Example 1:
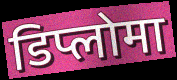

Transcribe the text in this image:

डिप्लोमा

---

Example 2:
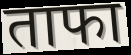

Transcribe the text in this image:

ताफा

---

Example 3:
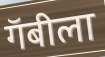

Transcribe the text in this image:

गॅबीला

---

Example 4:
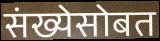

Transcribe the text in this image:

संख्येसोबत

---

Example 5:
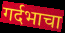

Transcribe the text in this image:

गर्दभाचा